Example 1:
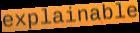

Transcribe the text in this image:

explainable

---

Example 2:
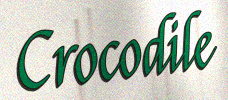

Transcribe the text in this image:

Crocodile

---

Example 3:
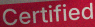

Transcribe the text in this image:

Certified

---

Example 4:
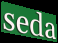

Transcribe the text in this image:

seda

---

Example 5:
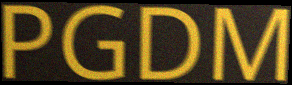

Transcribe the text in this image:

PGDM